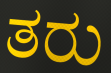
ತರು